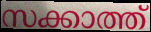
സക്കാത്ത്